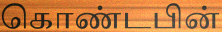
கொண்டபின்